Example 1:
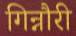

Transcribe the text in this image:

गिन्नौरी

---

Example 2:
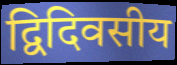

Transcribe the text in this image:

द्विदिवसीय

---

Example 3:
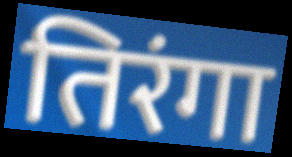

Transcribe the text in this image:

तिरंगा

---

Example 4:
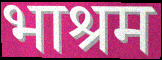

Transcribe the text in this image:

भाश्रम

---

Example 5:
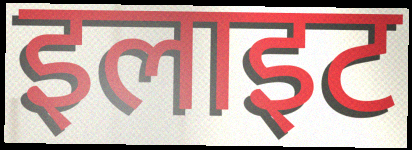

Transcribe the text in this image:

इलाइट